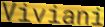
Viviani